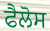
ਫੈਲੋਸ